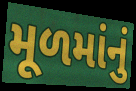
મૂળમાંનું